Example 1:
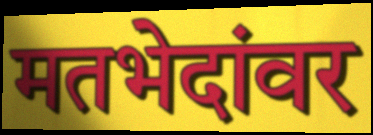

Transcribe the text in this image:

मतभेदांवर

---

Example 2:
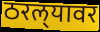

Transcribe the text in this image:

ठरल्यावर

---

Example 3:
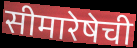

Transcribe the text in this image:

सीमारेषेची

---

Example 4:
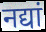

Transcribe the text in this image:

नद्यां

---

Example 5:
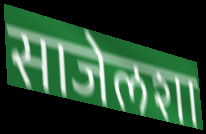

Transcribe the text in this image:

साजेलशा